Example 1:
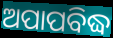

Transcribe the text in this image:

ଅପାପବିଦ୍ଧ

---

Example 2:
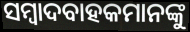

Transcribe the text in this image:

ସମ୍ବାଦବାହକମାନଙ୍କୁ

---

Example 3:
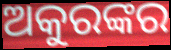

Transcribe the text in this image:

ଅକୁରଙ୍କର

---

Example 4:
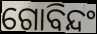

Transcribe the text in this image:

ଗୋବିନ୍ଦଂ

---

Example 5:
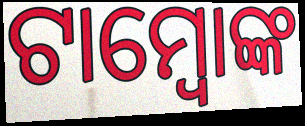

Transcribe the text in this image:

ଟାମ୍ବୋଙ୍କ